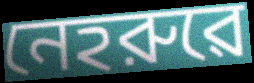
নেহৰুৱে